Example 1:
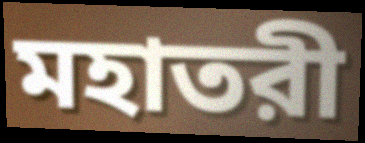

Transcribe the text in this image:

মহাতরী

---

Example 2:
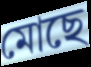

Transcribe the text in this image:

মোছে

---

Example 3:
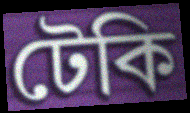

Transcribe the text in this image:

টেকি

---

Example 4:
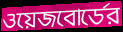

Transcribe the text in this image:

ওয়েজবোর্ডের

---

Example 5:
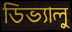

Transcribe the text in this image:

ডিভ্যালু